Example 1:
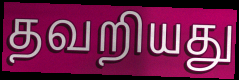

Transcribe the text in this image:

தவறியது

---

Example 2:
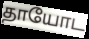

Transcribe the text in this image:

தாயோட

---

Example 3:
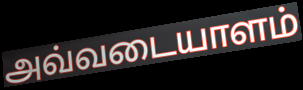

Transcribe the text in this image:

அவ்வடையாளம்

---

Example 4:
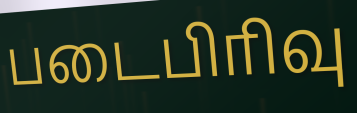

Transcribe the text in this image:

படைபிரிவு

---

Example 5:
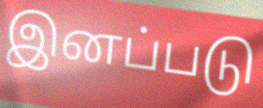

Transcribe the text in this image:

இனப்படு